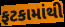
ફટકામાંથી